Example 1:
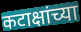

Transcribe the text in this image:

कटाक्षांच्या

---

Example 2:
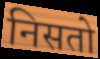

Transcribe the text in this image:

निसतो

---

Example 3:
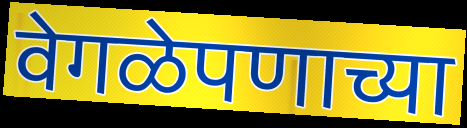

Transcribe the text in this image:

वेगळेपणाच्या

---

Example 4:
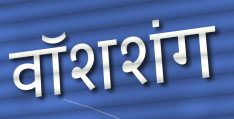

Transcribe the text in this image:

वॉशशंग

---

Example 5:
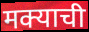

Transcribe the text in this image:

मक्याची